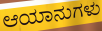
ಆಯಾನುಗಳು